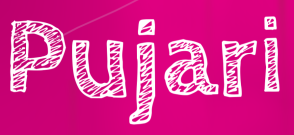
Pujari